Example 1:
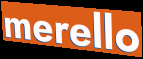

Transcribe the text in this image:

merello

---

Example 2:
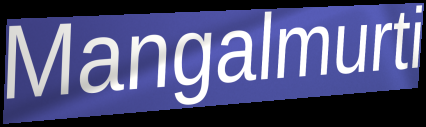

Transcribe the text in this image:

Mangalmurti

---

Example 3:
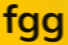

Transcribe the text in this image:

fgg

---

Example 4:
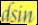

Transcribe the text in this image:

dsin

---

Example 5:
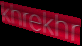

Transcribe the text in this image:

khrekhr